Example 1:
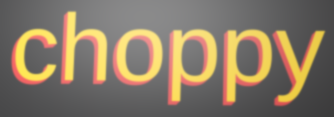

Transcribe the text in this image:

choppy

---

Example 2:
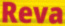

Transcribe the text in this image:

Reva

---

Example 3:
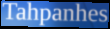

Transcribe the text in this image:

Tahpanhes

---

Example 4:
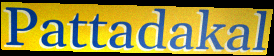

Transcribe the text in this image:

Pattadakal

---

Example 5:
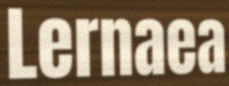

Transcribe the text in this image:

Lernaea